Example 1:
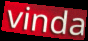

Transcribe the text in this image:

vinda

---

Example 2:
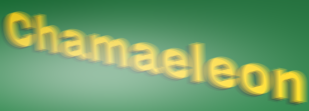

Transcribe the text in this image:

Chamaeleon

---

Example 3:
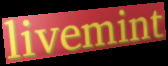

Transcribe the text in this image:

livemint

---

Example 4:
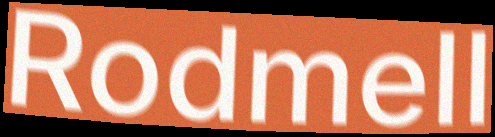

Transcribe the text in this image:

Rodmell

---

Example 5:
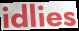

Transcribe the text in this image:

idlies